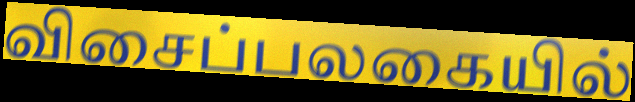
விசைப்பலகையில்